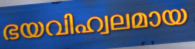
ഭയവിഹ്വലമായ